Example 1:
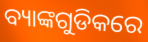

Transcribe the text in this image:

ବ୍ୟାଙ୍କଗୁଡିକରେ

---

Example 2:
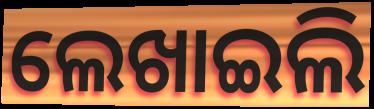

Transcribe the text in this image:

ଲେଖାଇଲି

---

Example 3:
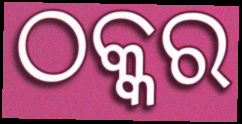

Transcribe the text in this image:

ଠକ୍କର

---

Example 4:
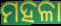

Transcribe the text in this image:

ମହଳା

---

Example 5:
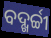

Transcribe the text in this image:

ବଦ୍ଖର୍ଚ୍ଚୀ